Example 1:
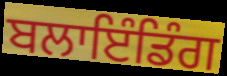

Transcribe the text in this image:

ਬਲਾਇੰਡਿੰਗ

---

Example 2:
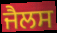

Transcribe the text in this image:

ਜੈਲਸ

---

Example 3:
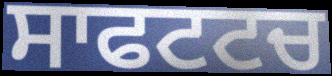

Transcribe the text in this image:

ਸਾਫਟਟਚ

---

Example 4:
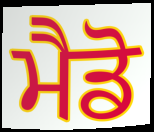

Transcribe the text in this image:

ਮੈਡੋ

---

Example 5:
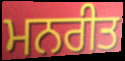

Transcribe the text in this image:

ਮਨਰੀਤ